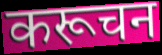
करूचन